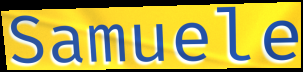
Samuele